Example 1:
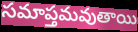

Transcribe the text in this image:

సమాప్తమవుతాయి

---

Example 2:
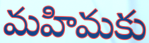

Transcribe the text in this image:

మహిమకు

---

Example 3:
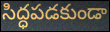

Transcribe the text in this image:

సిద్ధపడకుండా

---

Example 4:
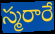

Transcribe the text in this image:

స్మరారే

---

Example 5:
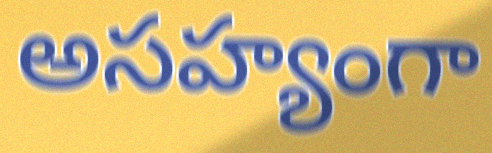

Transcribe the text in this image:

అసహ్యంగా